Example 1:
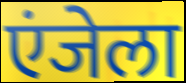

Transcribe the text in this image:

एंजेला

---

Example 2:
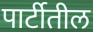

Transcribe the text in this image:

पार्टीतील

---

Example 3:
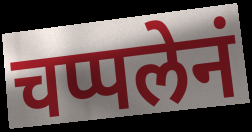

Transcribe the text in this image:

चप्पलेनं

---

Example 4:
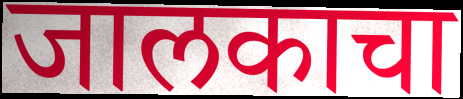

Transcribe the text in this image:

जालकाचा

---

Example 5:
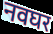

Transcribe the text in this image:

नवघर